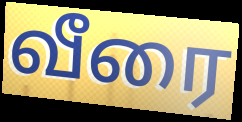
வீரை